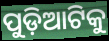
ପୁଡ଼ିଆଟିକୁ